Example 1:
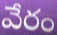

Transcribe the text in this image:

వేరం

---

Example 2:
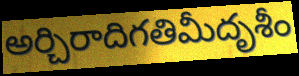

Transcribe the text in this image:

అర్చిరాదిగతిమీదృశీం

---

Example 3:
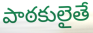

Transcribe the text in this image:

పాఠకులైతే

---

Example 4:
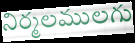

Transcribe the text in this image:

నిర్మలములగు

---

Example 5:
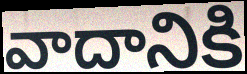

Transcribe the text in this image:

వాదానికి